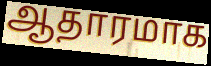
ஆதாரமாக